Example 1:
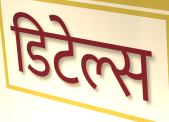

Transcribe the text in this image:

डिटेल्स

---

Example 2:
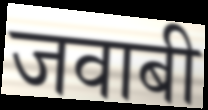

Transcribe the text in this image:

जवाबी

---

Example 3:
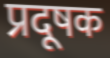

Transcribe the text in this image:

प्रदूषक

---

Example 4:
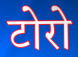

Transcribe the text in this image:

टोरो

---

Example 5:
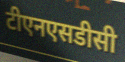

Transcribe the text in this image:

टीएनएसडीसी